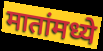
मातांमध्ये